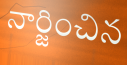
నార్జించిన